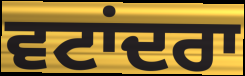
ਵਟਾਂਦਰਾ